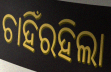
ଚାହିଁରହିଲା